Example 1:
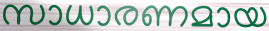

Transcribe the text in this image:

സാധാരണമായ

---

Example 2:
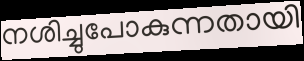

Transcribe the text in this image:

നശിച്ചുപോകുന്നതായി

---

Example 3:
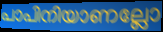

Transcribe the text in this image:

പാപിനിയാണല്ലോ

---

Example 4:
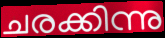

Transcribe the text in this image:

ചരക്കിന്നു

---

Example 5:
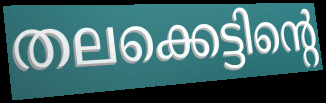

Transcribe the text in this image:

തലക്കെട്ടിന്റെ